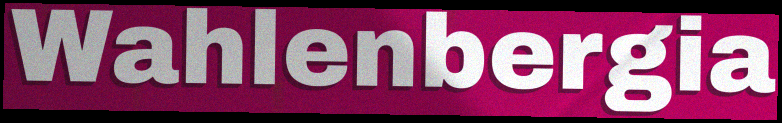
Wahlenbergia